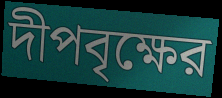
দীপবৃক্ষের